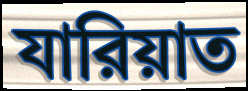
যারিয়াত